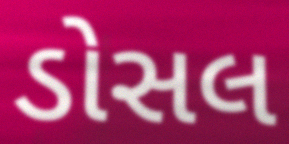
ડોસલ